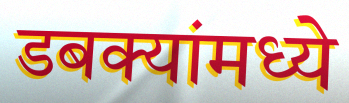
डबक्यांमध्ये